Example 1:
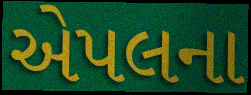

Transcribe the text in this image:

એપલના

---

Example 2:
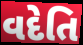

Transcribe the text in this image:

વદેતિ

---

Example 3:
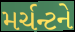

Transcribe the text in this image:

મર્ચન્ટને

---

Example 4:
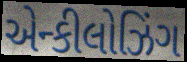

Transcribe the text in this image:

એન્કીલોઝિંગ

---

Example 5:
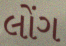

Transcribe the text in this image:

લોંગ